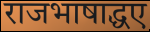
राजभाषाद्धए